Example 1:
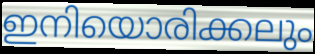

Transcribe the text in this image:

ഇനിയൊരിക്കലും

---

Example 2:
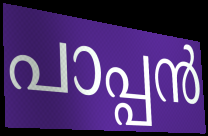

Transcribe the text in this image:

പാപ്പൻ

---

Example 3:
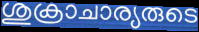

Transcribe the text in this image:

ശുക്രാചാര്യരുടെ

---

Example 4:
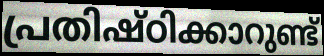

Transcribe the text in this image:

പ്രതിഷ്ഠിക്കാറുണ്ട്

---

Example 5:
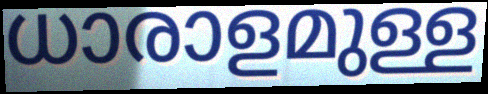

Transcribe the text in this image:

ധാരാളമുള്ള